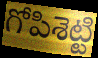
గోపిశెట్టి